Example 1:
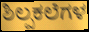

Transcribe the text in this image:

ಶಿಲ್ಪಕಲೆಗಳ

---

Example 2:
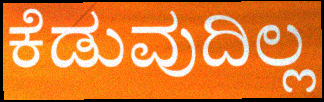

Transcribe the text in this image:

ಕೆಡುವುದಿಲ್ಲ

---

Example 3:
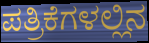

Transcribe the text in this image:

ಪತ್ರಿಕೆಗಳಲ್ಲಿನ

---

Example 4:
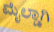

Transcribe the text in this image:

ಮೈಲ್ಡಾಗಿ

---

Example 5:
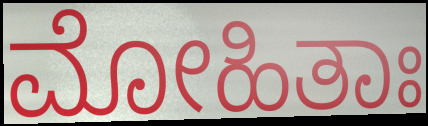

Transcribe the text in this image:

ಮೋಹಿತಾಃ